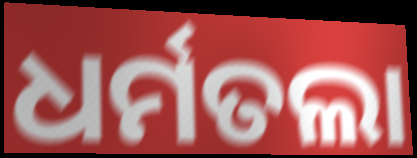
ଧର୍ମତଲା